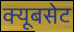
क्यूबसेट